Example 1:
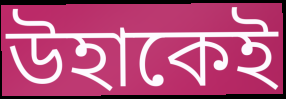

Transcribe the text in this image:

উহাকেই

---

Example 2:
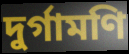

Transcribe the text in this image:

দুর্গামণি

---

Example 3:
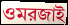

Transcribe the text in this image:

ওমরজাই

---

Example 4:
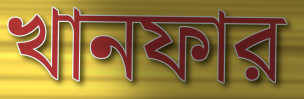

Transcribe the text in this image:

খানফার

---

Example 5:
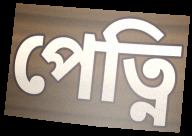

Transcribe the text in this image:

পেত্নি